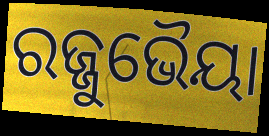
ରଜ୍ଜୁଭୈୟା